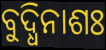
ବୁଦ୍ଧିନାଶଃ